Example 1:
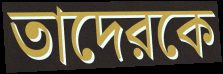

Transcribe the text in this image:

তাদেরকে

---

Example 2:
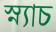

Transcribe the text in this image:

স্ন্যাচ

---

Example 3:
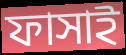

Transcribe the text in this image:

ফাসাই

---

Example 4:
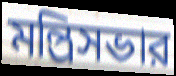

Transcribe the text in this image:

মন্ত্রিসভার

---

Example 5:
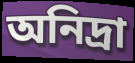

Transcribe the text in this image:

অনিদ্রা